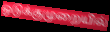
ஒடுக்குமுறையில்